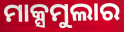
ମାକ୍ସମୁଲାର